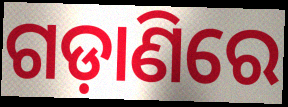
ଗଡ଼ାଣିରେ